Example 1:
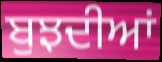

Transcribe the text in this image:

ਬੁਝਦੀਆਂ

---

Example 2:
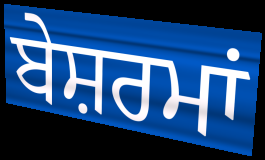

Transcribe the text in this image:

ਬੇਸ਼ਰਮਾਂ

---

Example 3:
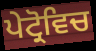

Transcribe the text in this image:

ਪੇਟ੍ਰੋਵਿਚ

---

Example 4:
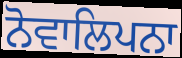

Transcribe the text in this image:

ਨੋਵਾਲਿਪਨਾ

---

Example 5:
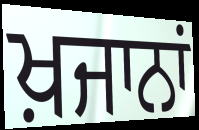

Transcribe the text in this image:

ਖ਼ਜਾਨਾਂ